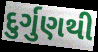
દુર્ગુણથી